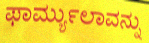
ಫಾರ್ಮ್ಯುಲಾವನ್ನು